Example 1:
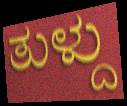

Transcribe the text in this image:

ತುಳ್ದು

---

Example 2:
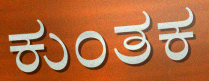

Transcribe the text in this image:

ಕುಂತಕ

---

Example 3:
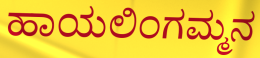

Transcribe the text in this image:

ಹಾಯಲಿಂಗಮ್ಮನ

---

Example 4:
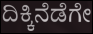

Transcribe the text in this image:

ದಿಕ್ಕಿನೆಡೆಗೇ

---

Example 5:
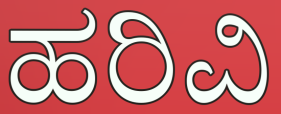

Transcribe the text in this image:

ಹರಿವಿ